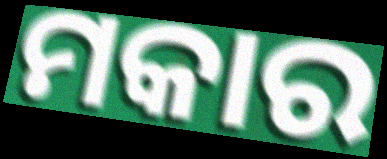
ମକାର